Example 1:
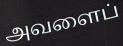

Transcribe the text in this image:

அவளைப்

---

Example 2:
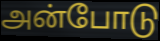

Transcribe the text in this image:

அன்போடு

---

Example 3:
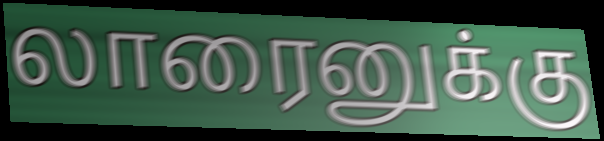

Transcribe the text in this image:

லாரைனுக்கு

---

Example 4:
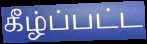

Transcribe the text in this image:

கீழ்ப்பட்ட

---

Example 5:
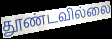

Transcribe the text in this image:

தூண்டவில்லை